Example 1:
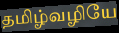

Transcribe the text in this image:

தமிழ்வழியே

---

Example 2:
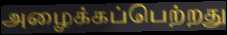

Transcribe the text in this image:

அழைக்கப்பெற்றது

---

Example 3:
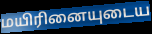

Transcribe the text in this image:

மயிரினையுடைய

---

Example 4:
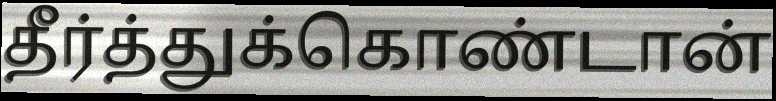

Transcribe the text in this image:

தீர்த்துக்கொண்டான்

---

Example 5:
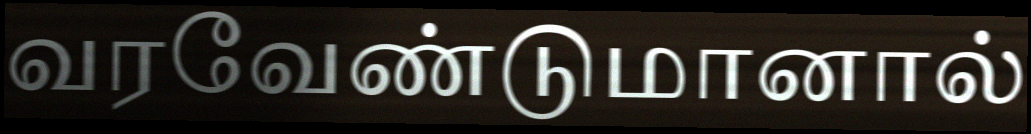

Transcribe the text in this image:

வரவேண்டுமானால்